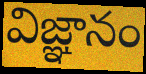
విజ్ఞానం